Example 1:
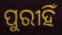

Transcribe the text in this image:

ପୁରୀହିଁ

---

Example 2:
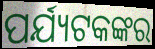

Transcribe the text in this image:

ପର୍ଯ୍ୟଟକଙ୍କର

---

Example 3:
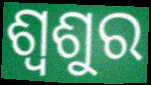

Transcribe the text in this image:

ଶ୍ଵଶୁର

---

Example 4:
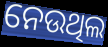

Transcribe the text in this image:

ନେଉଥିଲ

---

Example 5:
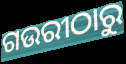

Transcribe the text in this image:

ଗଉରୀଠାରୁ